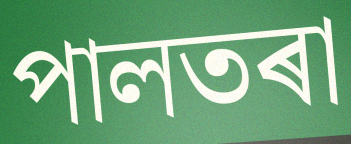
পালতৰা